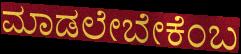
ಮಾಡಲೇಬೇಕೆಂಬ